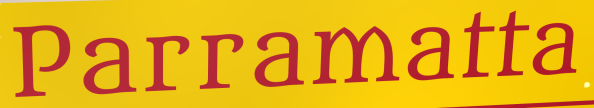
Parramatta